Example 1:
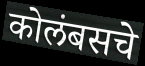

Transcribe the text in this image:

कोलंबसचे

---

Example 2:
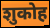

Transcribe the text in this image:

शुकोह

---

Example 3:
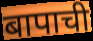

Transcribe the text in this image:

बापाची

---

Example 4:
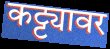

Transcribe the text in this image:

कट्ट्यावर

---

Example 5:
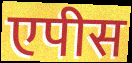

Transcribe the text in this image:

एपीस